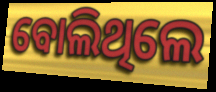
ବୋଲିଥିଲେ